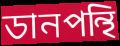
ডানপন্থি